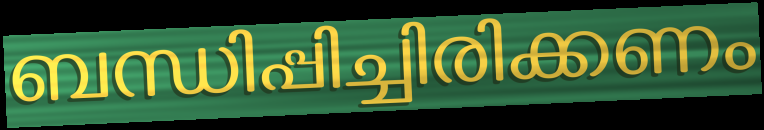
ബന്ധിപ്പിച്ചിരിക്കണം